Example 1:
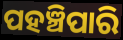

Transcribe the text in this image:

ପହଞ୍ଚିପାରି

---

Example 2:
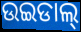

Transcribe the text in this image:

ଉଇଡାଲ୍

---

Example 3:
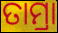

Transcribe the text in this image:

ତାମ୍ରା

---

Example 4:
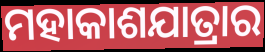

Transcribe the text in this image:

ମହାକାଶଯାତ୍ରାର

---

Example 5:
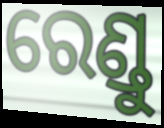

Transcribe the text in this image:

ରେଣ୍ଡୁ